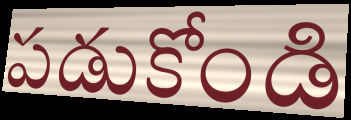
పడుకోండి